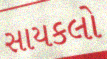
સાયકલો